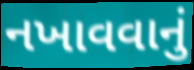
નખાવવાનું